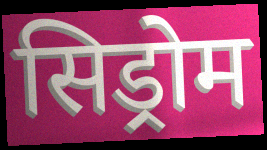
सिड्रोम